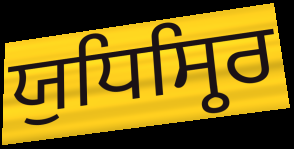
ਯੁਧਿਸ੍ਠਿਰ